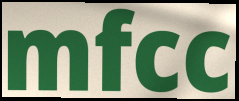
mfcc